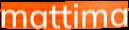
mattima